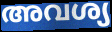
അവശ്യ